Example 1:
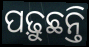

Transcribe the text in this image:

ପଢ଼ୁଛନ୍ତି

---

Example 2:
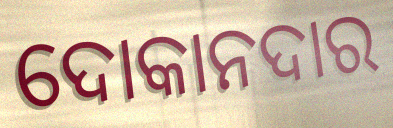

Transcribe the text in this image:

ଦୋକାନଦାର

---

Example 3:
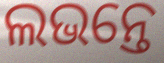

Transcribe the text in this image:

ଲଭନ୍ତେ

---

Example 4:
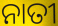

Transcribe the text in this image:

ନାତୀ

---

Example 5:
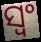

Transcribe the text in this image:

ସ୍ୱଂ